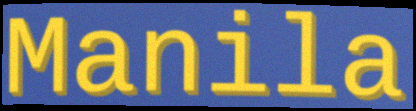
Manila